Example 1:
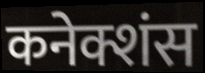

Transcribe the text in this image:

कनेक्शंस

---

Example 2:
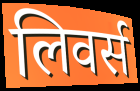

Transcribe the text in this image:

लिवर्स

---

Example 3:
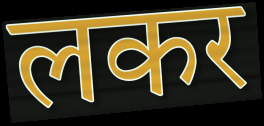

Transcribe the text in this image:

लकर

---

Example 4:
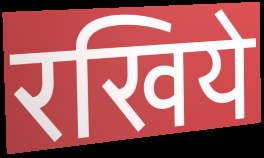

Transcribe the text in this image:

रखिये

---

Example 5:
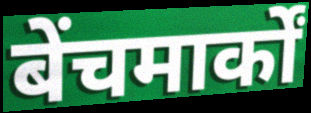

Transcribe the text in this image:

बेंचमार्कों